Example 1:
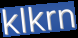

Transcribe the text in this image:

klkrn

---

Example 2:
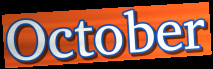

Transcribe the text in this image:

October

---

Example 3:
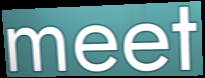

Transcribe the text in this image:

meet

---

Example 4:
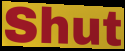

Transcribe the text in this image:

Shut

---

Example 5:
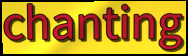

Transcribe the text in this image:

chanting